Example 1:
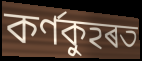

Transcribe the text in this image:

কৰ্ণকুহৰত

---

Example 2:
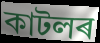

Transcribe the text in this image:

কাটলৰ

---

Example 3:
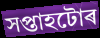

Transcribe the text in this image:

সপ্তাহটোৰ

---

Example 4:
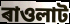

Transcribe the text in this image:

ৰাওলাট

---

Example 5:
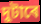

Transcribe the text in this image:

দুটাৰে